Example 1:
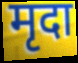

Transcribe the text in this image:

मृदा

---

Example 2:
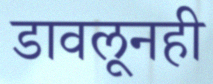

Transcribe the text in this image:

डावलूनही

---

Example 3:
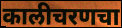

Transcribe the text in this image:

कालीचरणचा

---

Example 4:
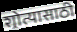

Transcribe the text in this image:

श्रोत्यासाठी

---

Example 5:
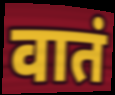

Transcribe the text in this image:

वातं